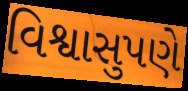
વિશ્વાસુપણે